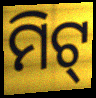
ମିଟ୍